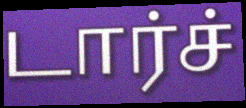
டார்ச்